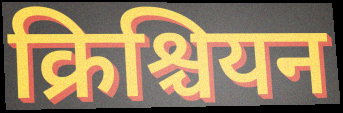
क्रिश्चियन